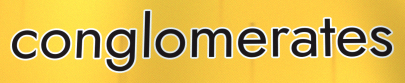
conglomerates